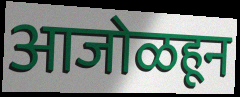
आजोळहून